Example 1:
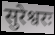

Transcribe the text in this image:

सुरेश्वरः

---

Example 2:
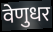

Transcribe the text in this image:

वेणुधर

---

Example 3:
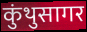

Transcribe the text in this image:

कुंथुसागर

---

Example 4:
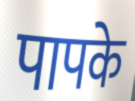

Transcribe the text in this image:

पापके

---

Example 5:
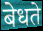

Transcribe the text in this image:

बेधते